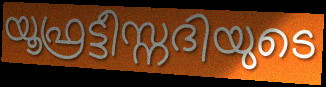
യൂഫ്രട്ടീസ്നദിയുടെ